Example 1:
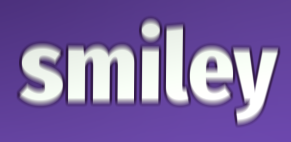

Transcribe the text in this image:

smiley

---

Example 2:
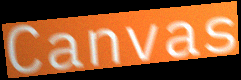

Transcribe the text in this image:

Canvas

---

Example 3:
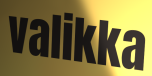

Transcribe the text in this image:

valikka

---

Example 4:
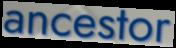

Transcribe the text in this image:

ancestor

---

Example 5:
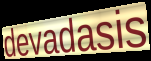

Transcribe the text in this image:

devadasis